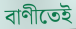
বাণীতেই